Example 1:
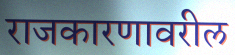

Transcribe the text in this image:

राजकारणावरील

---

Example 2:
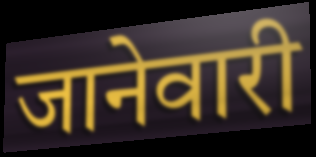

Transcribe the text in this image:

जानेवारी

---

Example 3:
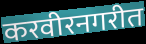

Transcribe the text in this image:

करवीरनगरीत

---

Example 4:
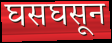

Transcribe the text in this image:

घसघसून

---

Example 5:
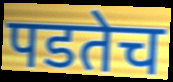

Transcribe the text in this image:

पडतेच